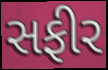
સફીર